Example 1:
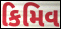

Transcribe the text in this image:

કિમિવ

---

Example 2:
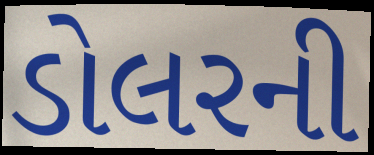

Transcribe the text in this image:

ડોલરની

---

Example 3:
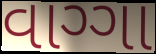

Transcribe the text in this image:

વાગ્ગા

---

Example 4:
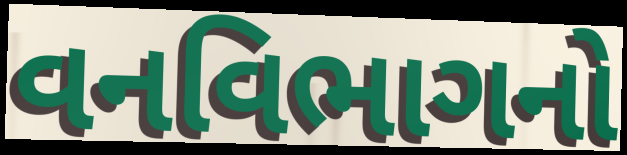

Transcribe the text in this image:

વનવિભાગનો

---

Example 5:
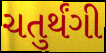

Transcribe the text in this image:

ચતુર્થંગી